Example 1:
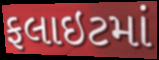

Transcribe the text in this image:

ફલાઇટમાં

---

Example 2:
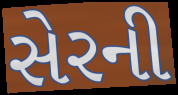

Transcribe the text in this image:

સેરની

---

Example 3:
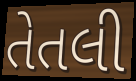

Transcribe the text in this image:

તેતલી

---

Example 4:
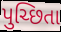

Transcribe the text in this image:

પુચ્છિતા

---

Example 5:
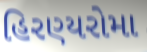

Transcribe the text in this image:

હિરણ્યરોમા